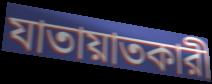
যাতায়াতকারী